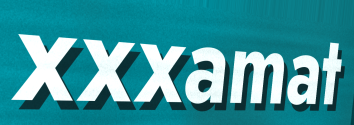
xxxamat